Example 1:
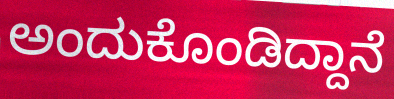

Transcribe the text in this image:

ಅಂದುಕೊಂಡಿದ್ದಾನೆ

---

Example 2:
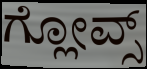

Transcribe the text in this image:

ಗ್ಲೋವ್ಸ್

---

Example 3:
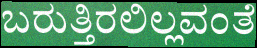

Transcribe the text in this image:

ಬರುತ್ತಿರಲಿಲ್ಲವಂತೆ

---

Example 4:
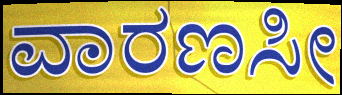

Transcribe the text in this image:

ವಾರಣಸೀ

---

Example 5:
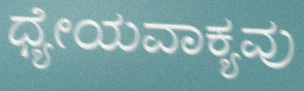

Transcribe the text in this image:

ಧ್ಯೇಯವಾಕ್ಯವು